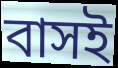
বাসই